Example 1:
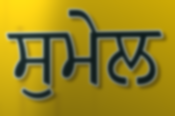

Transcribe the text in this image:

ਸੁਮੇਲ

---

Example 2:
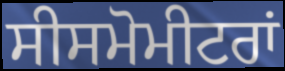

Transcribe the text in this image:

ਸੀਸਮੋਮੀਟਰਾਂ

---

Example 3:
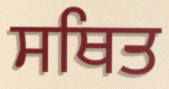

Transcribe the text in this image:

ਸਥਿਤ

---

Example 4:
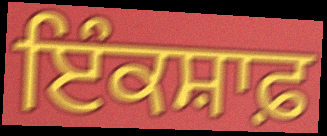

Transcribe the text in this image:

ਇੰਕਸ਼ਾਫ਼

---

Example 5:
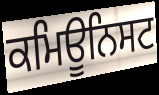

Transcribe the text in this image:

ਕਮਿਊਨਿਸਟ